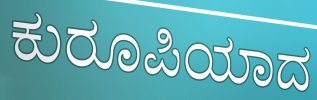
ಕುರೂಪಿಯಾದ